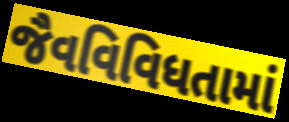
જૈવવિવિધતામાં